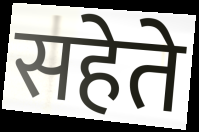
सहेते